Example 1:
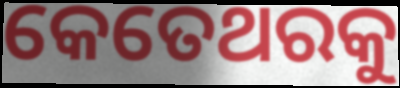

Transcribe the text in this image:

କେତେଥରକୁ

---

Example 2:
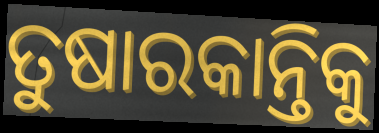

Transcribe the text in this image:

ତୁଷାରକାନ୍ତିକୁ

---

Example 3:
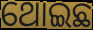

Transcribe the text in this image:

ଥୋଇଛ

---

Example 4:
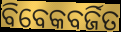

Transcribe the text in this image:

ବିବେକବର୍ଜିତ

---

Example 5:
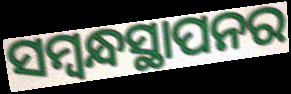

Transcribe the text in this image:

ସମ୍ବନ୍ଧସ୍ଥାପନର